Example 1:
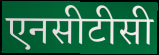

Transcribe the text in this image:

एनसीटीसी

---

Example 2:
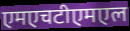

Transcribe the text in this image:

एमएचटीएमएल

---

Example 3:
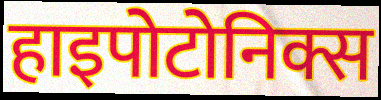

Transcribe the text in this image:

हाइपोटोनिक्स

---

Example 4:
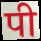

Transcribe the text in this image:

पी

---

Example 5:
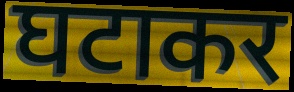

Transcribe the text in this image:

घटाकर